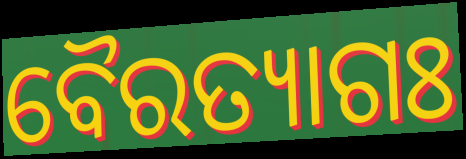
ବୈରତ୍ୟାଗଃ